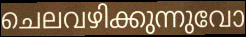
ചെലവഴിക്കുന്നുവോ